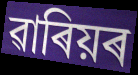
ৱাৰিয়ৰ